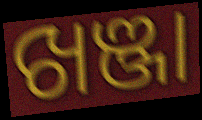
ଖଞ୍ଜା